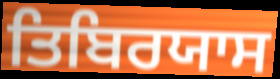
ਤਿਬਿਰਯਾਸ